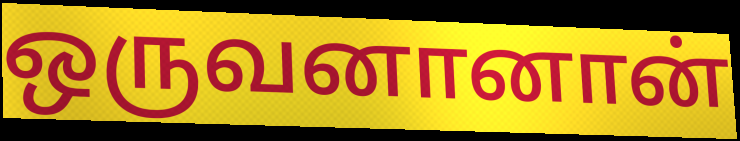
ஒருவனானான்